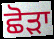
ਛੋੜਾ